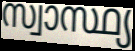
സ്വാസ്ഥ്യ